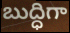
బుద్ధిగా